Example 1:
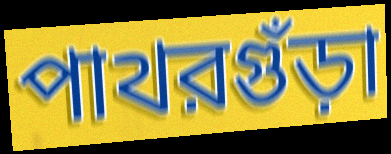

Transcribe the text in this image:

পাথরগুঁড়া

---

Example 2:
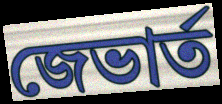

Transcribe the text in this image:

জেভার্ত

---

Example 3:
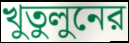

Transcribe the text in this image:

খুতুলুনের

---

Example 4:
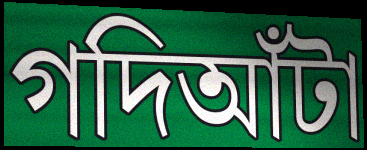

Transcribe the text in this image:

গদিআঁটা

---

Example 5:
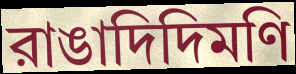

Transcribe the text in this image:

রাঙাদিদিমণি